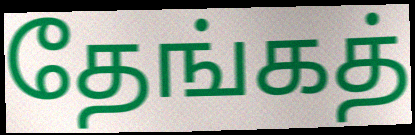
தேங்கத்